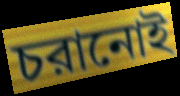
চরানোই